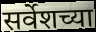
सर्वेशच्या